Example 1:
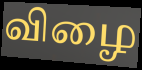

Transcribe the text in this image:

விழை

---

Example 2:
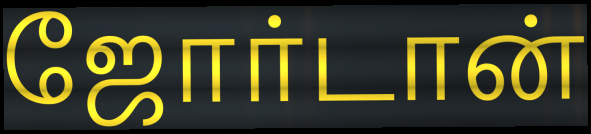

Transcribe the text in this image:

ஜோர்டான்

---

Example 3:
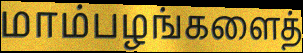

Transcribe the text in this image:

மாம்பழங்களைத்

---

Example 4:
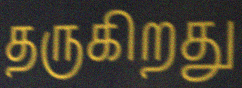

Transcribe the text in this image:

தருகிறது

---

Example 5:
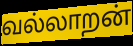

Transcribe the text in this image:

வல்லாறன்